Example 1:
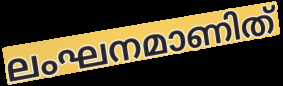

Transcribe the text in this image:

ലംഘനമാണിത്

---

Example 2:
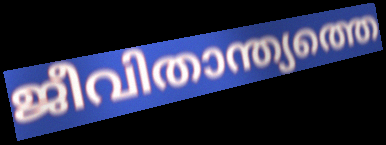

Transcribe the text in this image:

ജീവിതാന്ത്യത്തെ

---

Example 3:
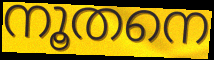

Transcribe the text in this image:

നൂതനെ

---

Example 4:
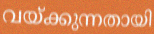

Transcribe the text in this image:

വയ്ക്കുന്നതായി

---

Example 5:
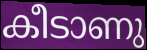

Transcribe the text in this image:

കീടാണു